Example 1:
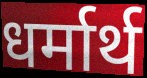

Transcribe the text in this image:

धर्मार्थ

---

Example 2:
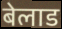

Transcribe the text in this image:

बेलाड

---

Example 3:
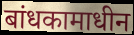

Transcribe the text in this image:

बांधकामाधीन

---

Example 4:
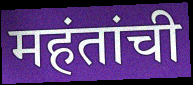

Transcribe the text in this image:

महंतांची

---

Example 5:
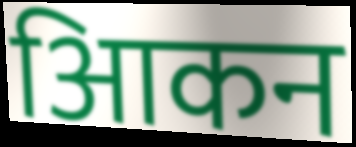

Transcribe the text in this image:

आिकन